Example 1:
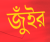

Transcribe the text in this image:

জুঁইর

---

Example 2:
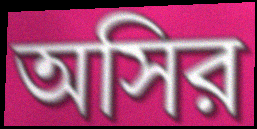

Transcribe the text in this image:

অসির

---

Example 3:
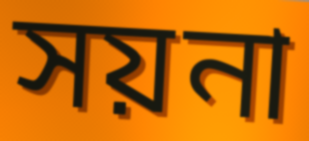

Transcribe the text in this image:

সয়না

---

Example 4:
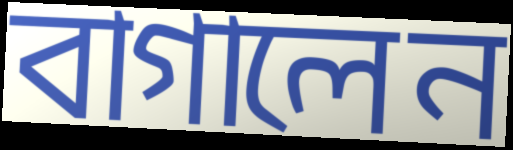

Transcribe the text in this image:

বাগালেন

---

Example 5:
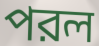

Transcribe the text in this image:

পরল